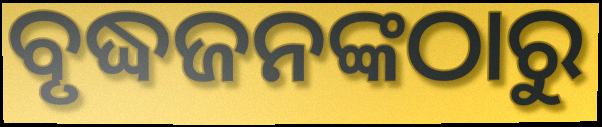
ବୃଦ୍ଧଜନଙ୍କଠାରୁ